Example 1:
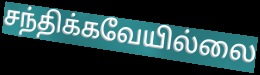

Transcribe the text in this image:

சந்திக்கவேயில்லை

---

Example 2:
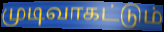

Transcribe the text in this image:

முடிவாகட்டும்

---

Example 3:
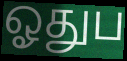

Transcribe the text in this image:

ஓதுப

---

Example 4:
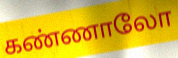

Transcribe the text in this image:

கண்ணாலோ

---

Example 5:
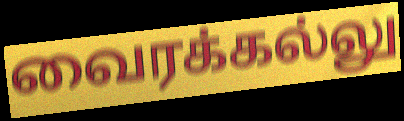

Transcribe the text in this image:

வைரக்கல்லு